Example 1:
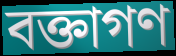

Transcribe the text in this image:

বক্তাগণ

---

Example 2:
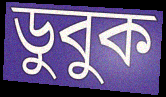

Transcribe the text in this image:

ডুবুক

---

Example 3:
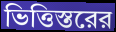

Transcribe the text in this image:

ভিত্তিস্তরের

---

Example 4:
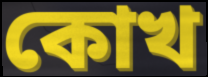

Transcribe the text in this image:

কোখ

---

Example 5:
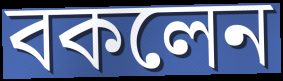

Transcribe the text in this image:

বকলেন